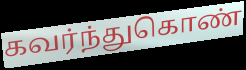
கவர்ந்துகொண்